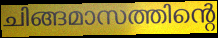
ചിങ്ങമാസത്തിന്റെ